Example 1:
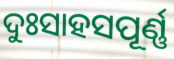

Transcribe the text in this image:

ଦୁଃସାହସପୂର୍ଣ୍ଣ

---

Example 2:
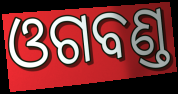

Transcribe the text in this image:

ଓଗବଣ୍ଡ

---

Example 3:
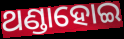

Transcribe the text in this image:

ଥଣ୍ଡାହୋଇ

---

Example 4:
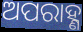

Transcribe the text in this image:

ଅପରାହ୍ଣ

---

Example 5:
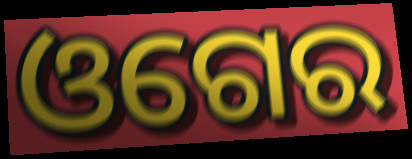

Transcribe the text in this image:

ଓଗେର